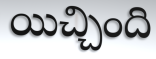
యిచ్చింది